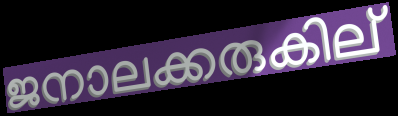
ജനാലക്കരുകില്